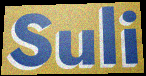
Suli